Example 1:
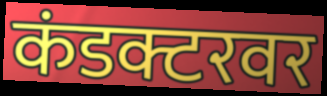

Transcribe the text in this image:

कंडक्टरवर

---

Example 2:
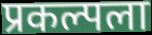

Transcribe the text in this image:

प्रकल्पला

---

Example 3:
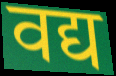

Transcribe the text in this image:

वद्य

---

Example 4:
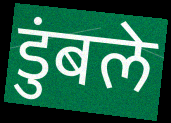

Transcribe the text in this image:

डुंबले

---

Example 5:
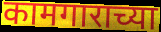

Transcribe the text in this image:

कामगाराच्या